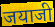
जयाजी